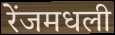
रेंजमधली